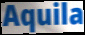
Aquila